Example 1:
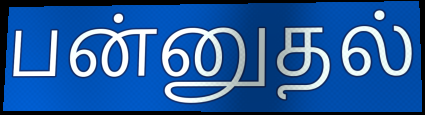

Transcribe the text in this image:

பன்னுதல்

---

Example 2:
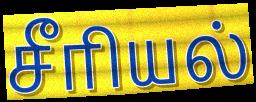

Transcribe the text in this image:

சீரியல்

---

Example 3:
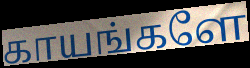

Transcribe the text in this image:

காயங்களே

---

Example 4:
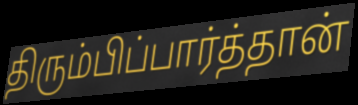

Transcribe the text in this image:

திரும்பிப்பார்த்தான்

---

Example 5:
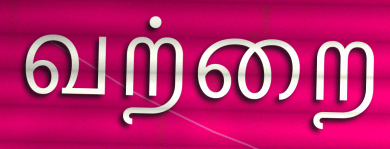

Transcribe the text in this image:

வற்றை